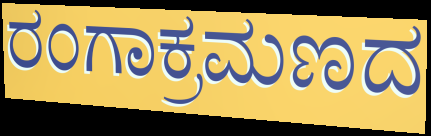
ರಂಗಾಕ್ರಮಣದ